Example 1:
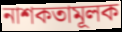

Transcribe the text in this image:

নাশকতামূলক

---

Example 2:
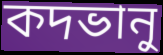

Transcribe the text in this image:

কদভানু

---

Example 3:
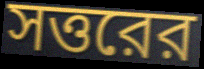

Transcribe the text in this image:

সত্তরের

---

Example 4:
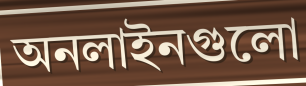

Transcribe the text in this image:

অনলাইনগুলো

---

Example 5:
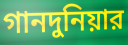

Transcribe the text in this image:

গানদুনিয়ার